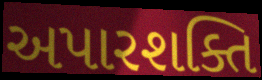
અપારશક્તિ